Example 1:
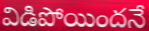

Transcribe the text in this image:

విడిపోయిందనే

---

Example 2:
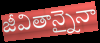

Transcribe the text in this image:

జీవితాన్నైనా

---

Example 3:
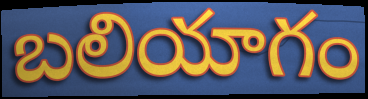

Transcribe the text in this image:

బలియాగం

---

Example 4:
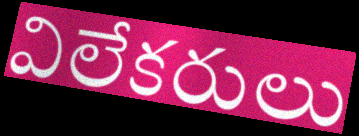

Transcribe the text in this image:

విలేకరులు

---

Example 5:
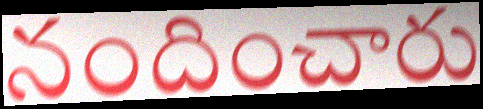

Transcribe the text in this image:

నందించారు